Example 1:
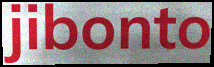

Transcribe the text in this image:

jibonto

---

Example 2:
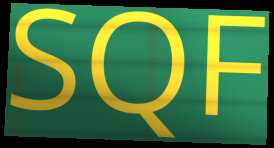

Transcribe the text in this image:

SQF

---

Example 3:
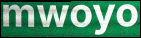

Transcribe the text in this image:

mwoyo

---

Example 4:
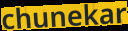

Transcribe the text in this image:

chunekar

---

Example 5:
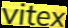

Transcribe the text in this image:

vitex